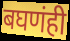
बघणंही